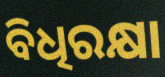
ବିଧିରକ୍ଷା